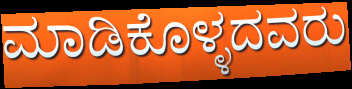
ಮಾಡಿಕೊಳ್ಳದವರು